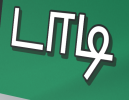
டாடி